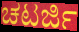
ಚಟರ್ಜಿ